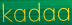
kadaa